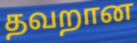
தவறான